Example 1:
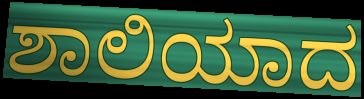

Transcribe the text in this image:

ಶಾಲಿಯಾದ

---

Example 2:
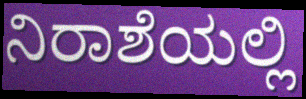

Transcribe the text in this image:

ನಿರಾಶೆಯಲ್ಲಿ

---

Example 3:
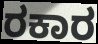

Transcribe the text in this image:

ರಕಾರ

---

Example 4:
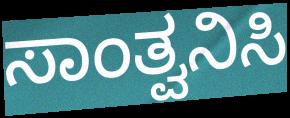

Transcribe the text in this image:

ಸಾಂತ್ವನಿಸಿ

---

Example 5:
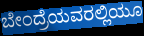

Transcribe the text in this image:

ಬೇಂದ್ರೆಯವರಲ್ಲಿಯೂ